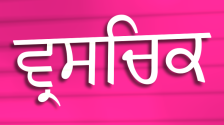
ਵ੍ਰਸਚਿਕ